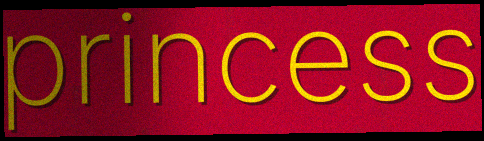
princess